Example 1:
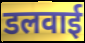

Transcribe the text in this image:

डलवाई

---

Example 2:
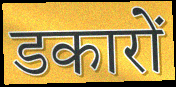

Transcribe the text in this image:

डकारों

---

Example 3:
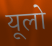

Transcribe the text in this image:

यूलो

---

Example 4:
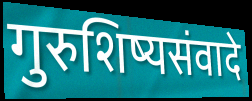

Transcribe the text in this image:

गुरुशिष्यसंवादे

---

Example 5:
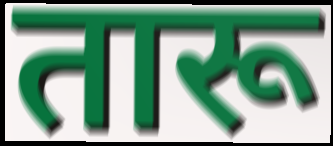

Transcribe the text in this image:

तारू